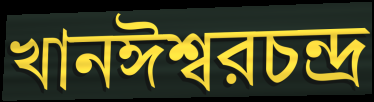
খানঈশ্বরচন্দ্র